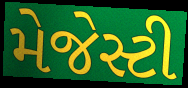
મેજેસ્ટી